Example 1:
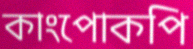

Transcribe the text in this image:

কাংপোকপি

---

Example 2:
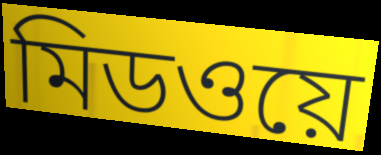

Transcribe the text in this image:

মিডওয়ে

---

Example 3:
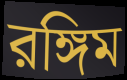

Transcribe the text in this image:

রঙ্গিম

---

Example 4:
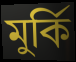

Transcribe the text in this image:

মুর্কি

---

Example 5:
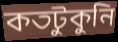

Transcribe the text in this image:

কতটুকুনি